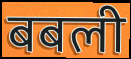
बबली